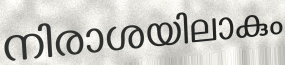
നിരാശയിലാകും